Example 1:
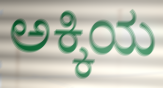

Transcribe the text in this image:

ಅಕ್ಕಿಯ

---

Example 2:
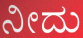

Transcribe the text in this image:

ನೀದು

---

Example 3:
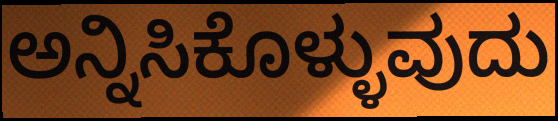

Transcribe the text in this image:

ಅನ್ನಿಸಿಕೊಳ್ಳುವುದು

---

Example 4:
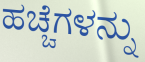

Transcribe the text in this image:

ಹಚ್ಚೆಗಳನ್ನು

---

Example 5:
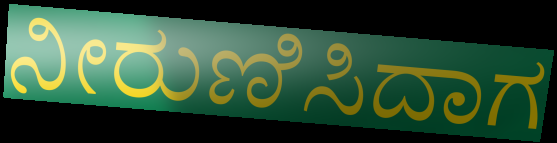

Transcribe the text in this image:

ನೀರುಣಿಸಿದಾಗ